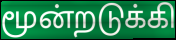
மூன்றடுக்கி